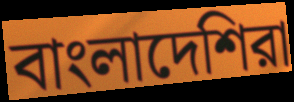
বাংলাদেশিরা